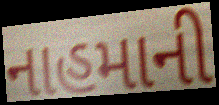
નાહમાની